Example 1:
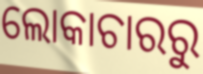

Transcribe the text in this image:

ଲୋକାଚାରରୁ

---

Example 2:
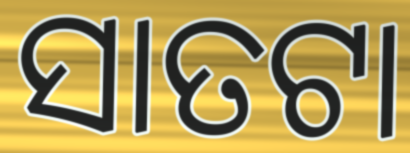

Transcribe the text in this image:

ସାତଟା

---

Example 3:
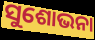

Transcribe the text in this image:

ସୁଶୋଭନା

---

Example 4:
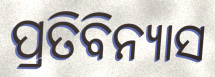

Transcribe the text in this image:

ପ୍ରତିବିନ୍ୟାସ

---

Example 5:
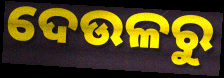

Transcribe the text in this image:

ଦେଉଳରୁ